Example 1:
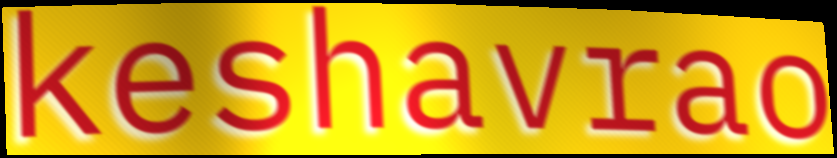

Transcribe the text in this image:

keshavrao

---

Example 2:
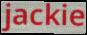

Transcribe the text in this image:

jackie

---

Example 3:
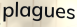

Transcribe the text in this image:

plagues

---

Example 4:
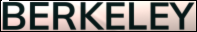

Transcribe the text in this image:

BERKELEY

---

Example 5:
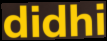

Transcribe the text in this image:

didhi